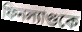
ফিনল্যাণ্ডকে